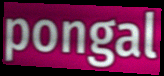
pongal